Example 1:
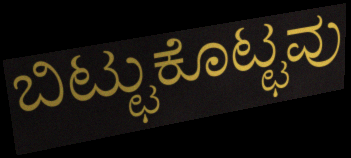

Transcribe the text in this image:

ಬಿಟ್ಟುಕೊಟ್ಟವು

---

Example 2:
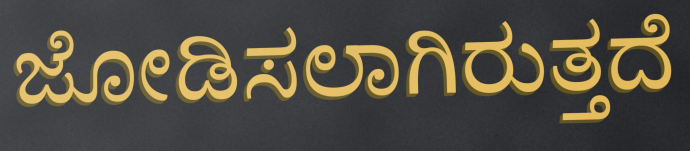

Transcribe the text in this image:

ಜೋಡಿಸಲಾಗಿರುತ್ತದೆ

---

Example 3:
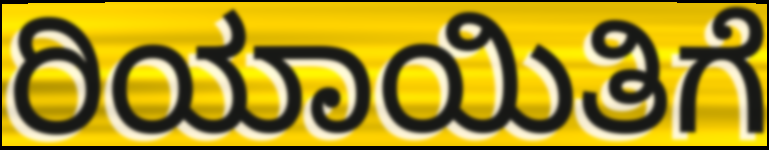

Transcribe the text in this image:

ರಿಯಾಯಿತಿಗೆ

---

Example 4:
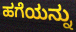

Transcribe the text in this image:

ಹಗೆಯನ್ನು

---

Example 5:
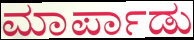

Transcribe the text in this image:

ಮಾರ್ಪಾಡು